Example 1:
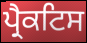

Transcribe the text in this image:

ਪ੍ਰੈਕਟਿਸ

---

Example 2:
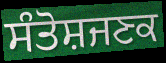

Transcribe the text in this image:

ਸੰਤੋਸ਼ਜਣਕ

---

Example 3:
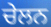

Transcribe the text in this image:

ਚੇਲਨ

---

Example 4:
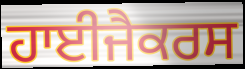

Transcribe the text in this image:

ਹਾਈਜੈਕਰਸ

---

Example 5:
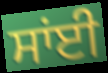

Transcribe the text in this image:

ਸਾਂਈ